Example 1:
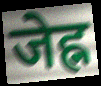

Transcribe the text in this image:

जेह्न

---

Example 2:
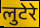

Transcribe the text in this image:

लुटेरे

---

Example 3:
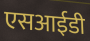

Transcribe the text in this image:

एसआईडी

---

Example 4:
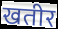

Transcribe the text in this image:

खतीर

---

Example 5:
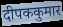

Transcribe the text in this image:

दीपककुमार